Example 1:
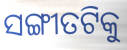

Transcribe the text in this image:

ସଙ୍ଗୀତଟିକୁ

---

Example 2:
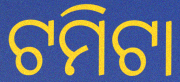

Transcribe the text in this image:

ଟମିଟା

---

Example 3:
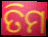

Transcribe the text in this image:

ତିମ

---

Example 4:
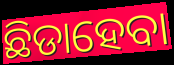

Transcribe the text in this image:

ଛିଡାହେବା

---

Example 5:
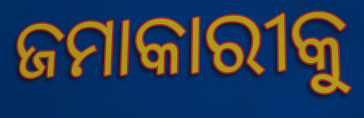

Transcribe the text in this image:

ଜମାକାରୀକୁ